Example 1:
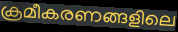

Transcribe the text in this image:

ക്രമീകരണങ്ങളിലെ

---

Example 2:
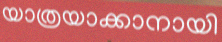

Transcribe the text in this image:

യാത്രയാക്കാനായി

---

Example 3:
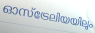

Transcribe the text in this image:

ഓസ്ട്രേലിയയിലും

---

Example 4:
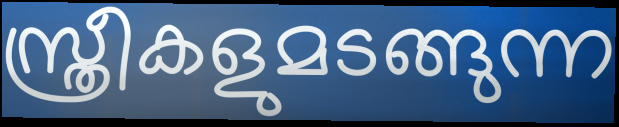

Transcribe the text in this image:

സ്ത്രീകളുമടങ്ങുന്ന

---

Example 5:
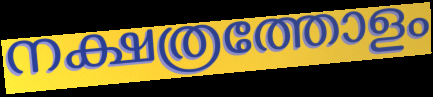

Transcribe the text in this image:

നക്ഷത്രത്തോളം